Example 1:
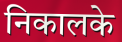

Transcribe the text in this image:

निकालके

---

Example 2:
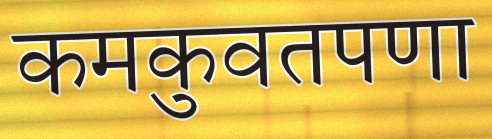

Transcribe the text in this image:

कमकुवतपणा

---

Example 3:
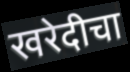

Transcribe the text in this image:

खरेदीचा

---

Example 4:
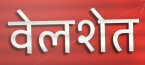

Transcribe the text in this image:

वेलशेत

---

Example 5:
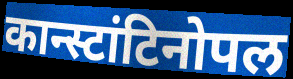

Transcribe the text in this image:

कान्स्टांटिनोपल